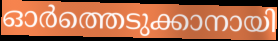
ഓർത്തെടുക്കാനായി